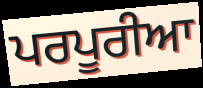
ਪਰਪੂਰੀਆ